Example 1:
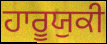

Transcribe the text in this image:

ਹਾਰੂਯੁਕੀ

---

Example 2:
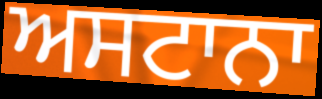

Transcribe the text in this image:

ਅਸਟਾਨਾ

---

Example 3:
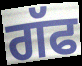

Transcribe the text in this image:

ਗੱਫ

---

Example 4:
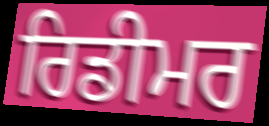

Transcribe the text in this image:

ਰਿਡੀਮਰ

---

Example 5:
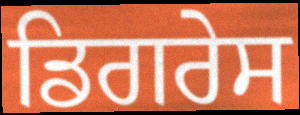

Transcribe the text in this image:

ਡਿਗਰੇਸ